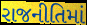
રાજનીતિમાં